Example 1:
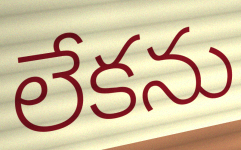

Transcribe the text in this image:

లేకను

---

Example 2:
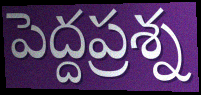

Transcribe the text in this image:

పెద్దప్రశ్న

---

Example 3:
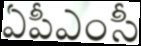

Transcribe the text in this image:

ఏపీఎంసీ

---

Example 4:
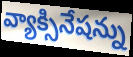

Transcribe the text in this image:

వ్యాక్సినేషన్ను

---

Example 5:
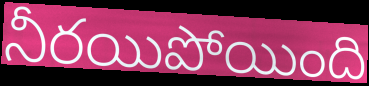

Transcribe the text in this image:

నీరయిపోయింది